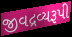
જીવદ્રવ્યરૂપી